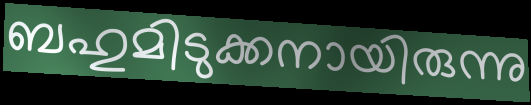
ബഹുമിടുക്കനായിരുന്നു